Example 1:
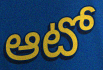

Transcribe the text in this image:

ఆటో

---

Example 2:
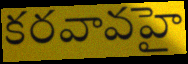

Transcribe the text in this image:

కరవావహై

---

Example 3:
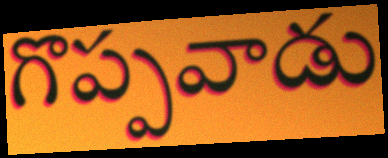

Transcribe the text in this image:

గొప్పవాడు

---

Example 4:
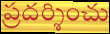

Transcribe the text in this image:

ప్రదర్శించు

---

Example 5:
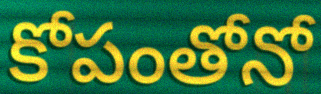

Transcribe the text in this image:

కోపంతోనో